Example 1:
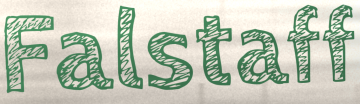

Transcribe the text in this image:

Falstaff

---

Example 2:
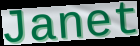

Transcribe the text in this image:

Janet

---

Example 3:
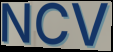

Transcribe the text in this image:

NCV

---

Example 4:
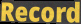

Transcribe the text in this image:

Record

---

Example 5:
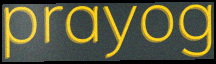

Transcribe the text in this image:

prayog